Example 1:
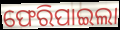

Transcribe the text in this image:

ଫେରିପାଇଲା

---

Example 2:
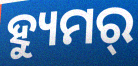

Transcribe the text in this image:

ହ୍ୟୁମର୍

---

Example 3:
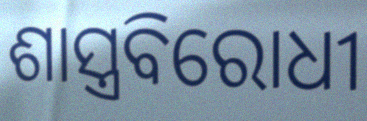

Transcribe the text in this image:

ଶାସ୍ତ୍ରବିରୋଧୀ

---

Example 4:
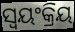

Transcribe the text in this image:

ସ୍ୱୟଂକ୍ରିୟ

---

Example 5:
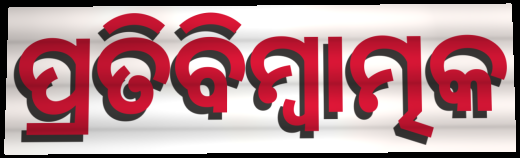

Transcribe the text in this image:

ପ୍ରତିବିମ୍ବାତ୍ମକ